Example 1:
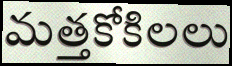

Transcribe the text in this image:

మత్తకోకిలలు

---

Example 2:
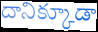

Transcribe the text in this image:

దానిక్కూడా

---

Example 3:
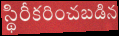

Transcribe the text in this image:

స్థిరీకరించబడిన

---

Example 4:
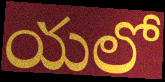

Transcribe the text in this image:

యలో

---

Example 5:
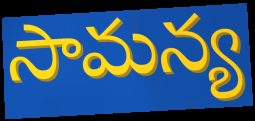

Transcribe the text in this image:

సామన్య